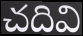
చదివి